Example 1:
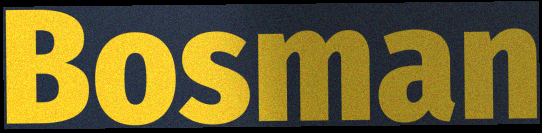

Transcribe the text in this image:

Bosman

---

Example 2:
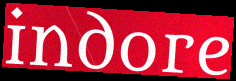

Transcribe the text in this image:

indore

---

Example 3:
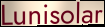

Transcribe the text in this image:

Lunisolar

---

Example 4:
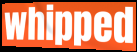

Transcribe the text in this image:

whipped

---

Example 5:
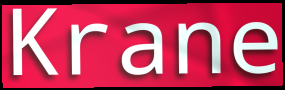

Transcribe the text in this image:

Krane